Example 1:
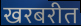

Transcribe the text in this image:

खरबरीत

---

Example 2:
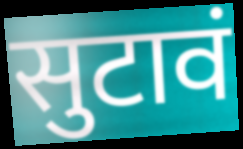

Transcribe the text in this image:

सुटावं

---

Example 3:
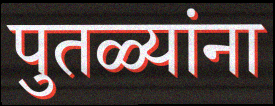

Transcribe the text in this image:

पुतळ्यांना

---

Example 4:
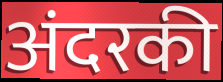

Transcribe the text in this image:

अंदरकी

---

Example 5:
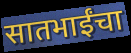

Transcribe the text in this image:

सातभाईंचा